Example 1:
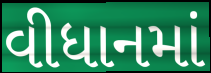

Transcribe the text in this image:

વીધાનમાં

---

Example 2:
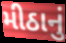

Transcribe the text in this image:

મીઠાનું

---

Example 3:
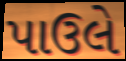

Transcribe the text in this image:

પાઉલે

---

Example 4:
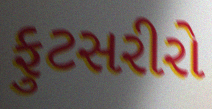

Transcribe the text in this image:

ફુટસરીરો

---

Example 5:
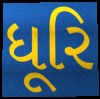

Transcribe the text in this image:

ધૂરિ